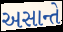
અસાન્તે